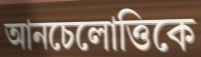
আনচেলোত্তিকে